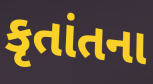
કૃતાંતના